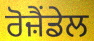
ਰੋਜ਼ੈਂਡੇਲ